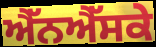
ਐੱਨਐੱਸਕੇ